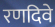
रणदिवे